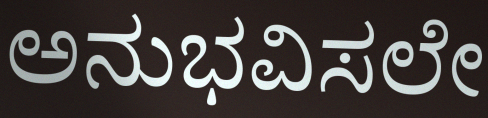
ಅನುಭವಿಸಲೇ